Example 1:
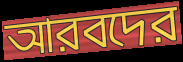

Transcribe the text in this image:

আরবদের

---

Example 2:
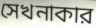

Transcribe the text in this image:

সেখনাকার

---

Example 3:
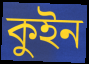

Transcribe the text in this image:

কুইন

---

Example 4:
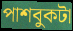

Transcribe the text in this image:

পাশবুকটা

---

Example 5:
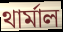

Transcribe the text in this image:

থার্মাল